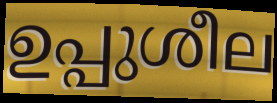
ഉപ്പുശീല